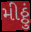
મીઠ્ઠું